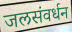
जलसंवर्धन